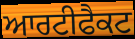
ਆਰਟੀਫੈਕਟ